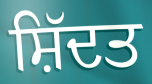
ਸ਼ਿੱਦਤ